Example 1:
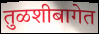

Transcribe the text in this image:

तुळशीबागेत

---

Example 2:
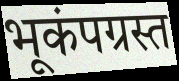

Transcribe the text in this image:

भूकंपग्रस्त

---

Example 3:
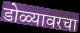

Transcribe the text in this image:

डोळ्यावरचा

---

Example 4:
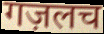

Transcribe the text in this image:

गज़लच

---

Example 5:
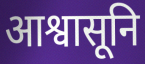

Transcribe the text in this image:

आश्वासूनि